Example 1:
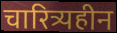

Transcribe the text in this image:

चारित्र्यहीन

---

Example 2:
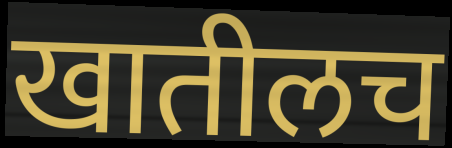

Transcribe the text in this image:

खातीलच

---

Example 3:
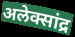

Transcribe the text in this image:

अलेक्सांद्र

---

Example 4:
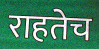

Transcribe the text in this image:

राहतेच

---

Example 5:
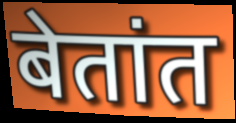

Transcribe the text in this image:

बेतांत